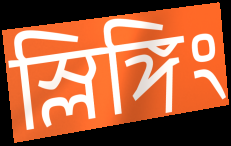
স্লিঙ্গিং